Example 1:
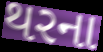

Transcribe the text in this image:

થરના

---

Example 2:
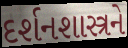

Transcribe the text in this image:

દર્શનશાસ્ત્રને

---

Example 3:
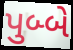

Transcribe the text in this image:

પુબ્બે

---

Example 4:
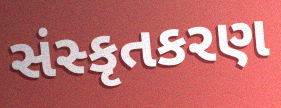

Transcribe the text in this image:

સંસ્કૃતકરણ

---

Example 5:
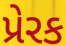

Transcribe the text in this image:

પ્રેરક